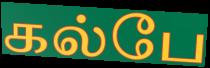
கல்பே